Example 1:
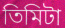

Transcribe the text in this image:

তিমিটা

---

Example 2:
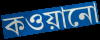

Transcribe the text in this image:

কওয়ানো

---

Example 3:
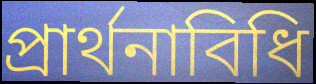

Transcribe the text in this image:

প্রার্থনাবিধি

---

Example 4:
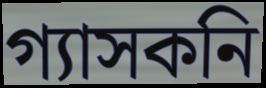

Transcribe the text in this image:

গ্যাসকনি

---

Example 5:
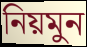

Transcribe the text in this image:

নিয়মুন